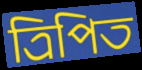
ত্রিপিত